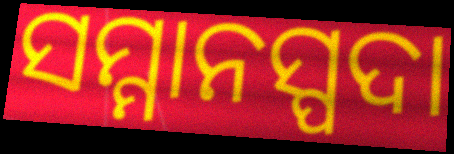
ସମ୍ମାନସ୍ପଦା